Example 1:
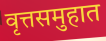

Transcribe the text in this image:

वृत्तसमुहात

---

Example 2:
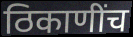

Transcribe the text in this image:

ठिकाणींच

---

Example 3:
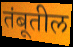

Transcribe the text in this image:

तंबूतील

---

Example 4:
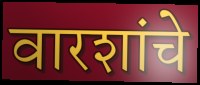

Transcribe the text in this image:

वारशांचे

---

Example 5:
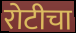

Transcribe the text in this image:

रोटीचा